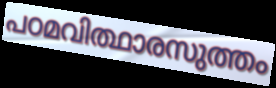
പഠമവിത്ഥാരസുത്തം